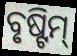
ବୃଷ୍ଟିମ୍